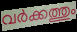
വർക്കത്തും